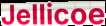
Jellicoe